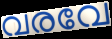
വരവേ